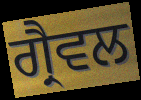
ਗ੍ਰੈਵਲ